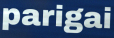
parigai